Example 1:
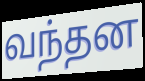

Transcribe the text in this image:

வந்தன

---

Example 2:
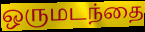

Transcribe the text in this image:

ஒருமடந்தை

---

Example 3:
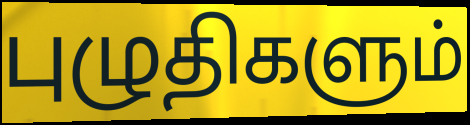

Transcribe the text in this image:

புழுதிகளும்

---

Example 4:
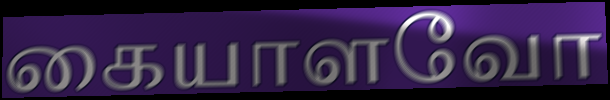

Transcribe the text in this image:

கையாளவோ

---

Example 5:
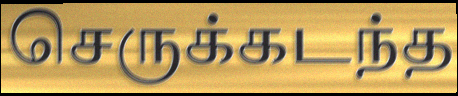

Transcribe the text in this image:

செருக்கடந்த